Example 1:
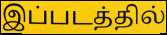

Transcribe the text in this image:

இப்படத்தில்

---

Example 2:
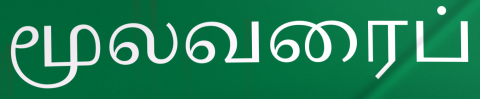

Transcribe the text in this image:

மூலவரைப்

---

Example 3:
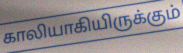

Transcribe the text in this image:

காலியாகியிருக்கும்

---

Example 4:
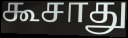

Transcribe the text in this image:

கூசாது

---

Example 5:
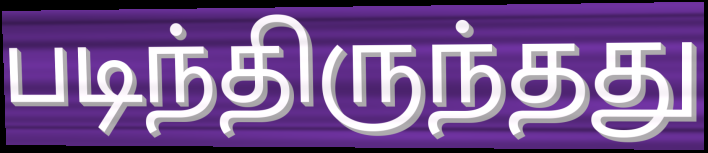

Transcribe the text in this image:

படிந்திருந்தது